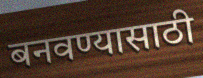
बनवण्‍यासाठी